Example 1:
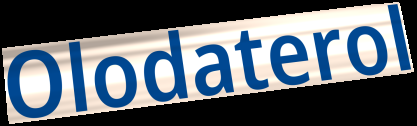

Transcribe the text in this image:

Olodaterol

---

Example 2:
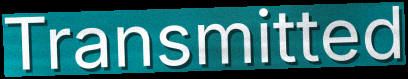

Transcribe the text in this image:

Transmitted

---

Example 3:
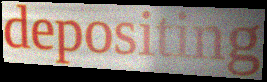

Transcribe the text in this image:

depositing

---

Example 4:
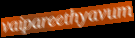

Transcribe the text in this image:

vaipareethyavum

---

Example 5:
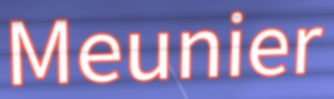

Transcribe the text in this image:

Meunier